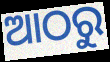
ଆଠରୁ